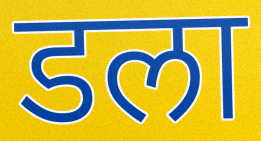
डला